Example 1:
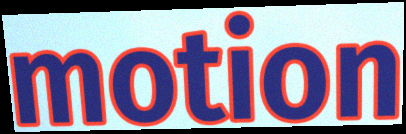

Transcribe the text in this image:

motion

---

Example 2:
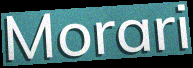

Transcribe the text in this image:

Morari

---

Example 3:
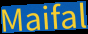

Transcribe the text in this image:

Maifal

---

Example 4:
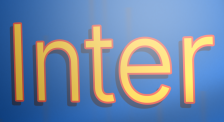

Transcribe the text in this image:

Inter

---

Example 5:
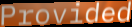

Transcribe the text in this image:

Provided